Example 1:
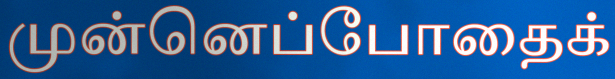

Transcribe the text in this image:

முன்னெப்போதைக்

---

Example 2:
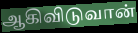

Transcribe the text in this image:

ஆகிவிடுவான்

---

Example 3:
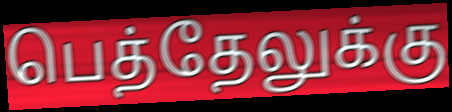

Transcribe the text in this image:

பெத்தேலுக்கு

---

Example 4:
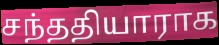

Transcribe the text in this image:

சந்ததியாராக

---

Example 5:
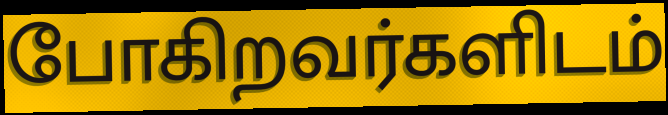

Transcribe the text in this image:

போகிறவர்களிடம்